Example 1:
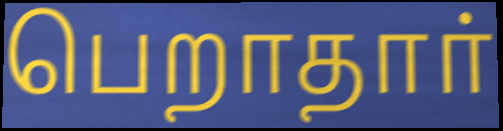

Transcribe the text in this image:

பெறாதார்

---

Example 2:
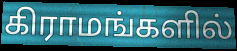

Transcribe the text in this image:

கிராமங்களில்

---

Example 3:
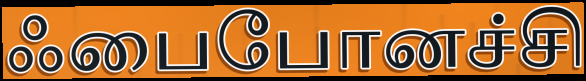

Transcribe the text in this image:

ஃபைபோனச்சி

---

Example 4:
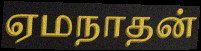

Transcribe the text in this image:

ஏமநாதன்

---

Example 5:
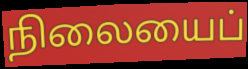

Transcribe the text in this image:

நிலையைப்